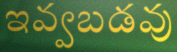
ఇవ్వబడవు